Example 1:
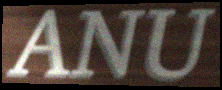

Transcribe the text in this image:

ANU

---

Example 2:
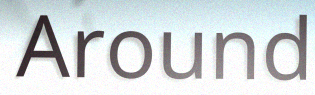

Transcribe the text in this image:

Around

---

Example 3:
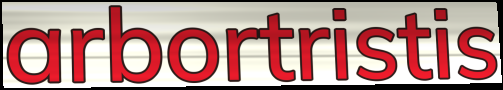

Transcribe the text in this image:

arbortristis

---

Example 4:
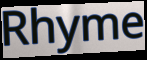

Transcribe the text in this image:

Rhyme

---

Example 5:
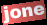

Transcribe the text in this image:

jone